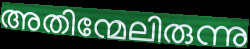
അതിന്മേലിരുന്നു